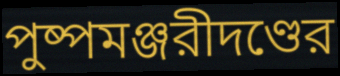
পুষ্পমঞ্জরীদণ্ডের